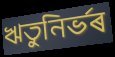
ঋতুনিৰ্ভৰ